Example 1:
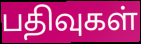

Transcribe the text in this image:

பதிவுகள்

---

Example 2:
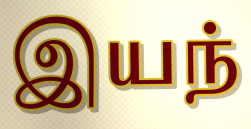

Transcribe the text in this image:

இயந்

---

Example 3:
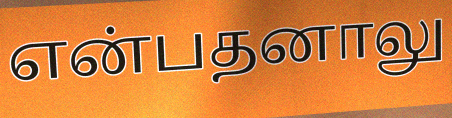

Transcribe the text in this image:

என்பதனாலு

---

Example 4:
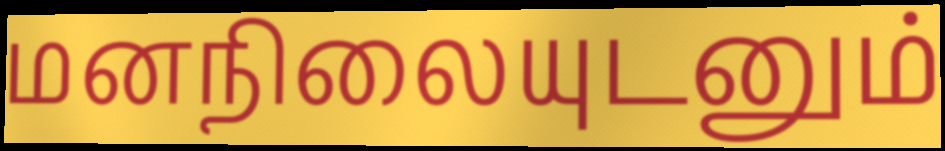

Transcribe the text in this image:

மனநிலையுடனும்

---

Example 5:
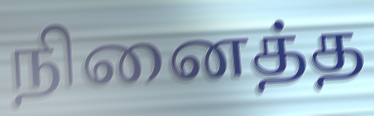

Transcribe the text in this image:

நினைத்த